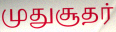
முதுசூதர்